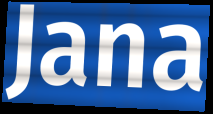
Jana